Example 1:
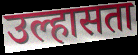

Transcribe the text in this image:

उल्हासता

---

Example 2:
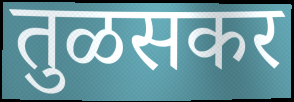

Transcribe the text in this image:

तुळसकर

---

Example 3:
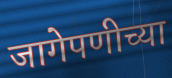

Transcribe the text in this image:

जागेपणीच्या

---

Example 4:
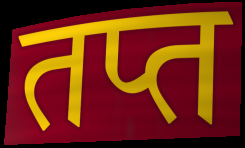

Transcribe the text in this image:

तप्त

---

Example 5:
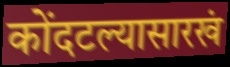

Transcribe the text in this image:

कोंदटल्यासारखं